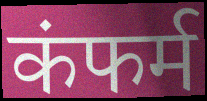
कंफर्म